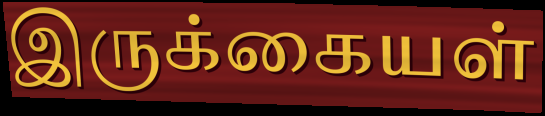
இருக்கையள்